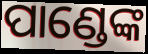
ପାଣ୍ଡେଙ୍କ